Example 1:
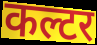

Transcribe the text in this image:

कल्टर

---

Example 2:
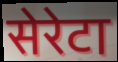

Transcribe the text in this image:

सेरेटा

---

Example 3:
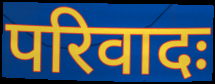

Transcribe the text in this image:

परिवादः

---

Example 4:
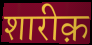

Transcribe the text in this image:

शारीक़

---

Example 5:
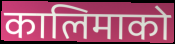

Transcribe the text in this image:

कालिमाको